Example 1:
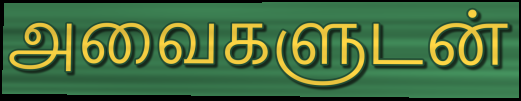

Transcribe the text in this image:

அவைகளுடன்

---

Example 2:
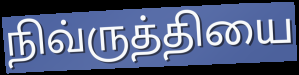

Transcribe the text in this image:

நிவ்ருத்தியை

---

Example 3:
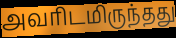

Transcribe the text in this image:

அவரிடமிருந்தது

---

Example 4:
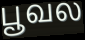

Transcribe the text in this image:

பூவல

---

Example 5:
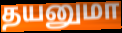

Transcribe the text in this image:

தயனுமா